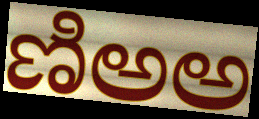
ణిఅఅ